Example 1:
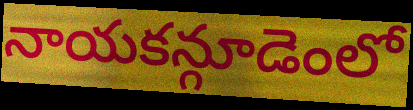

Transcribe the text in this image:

నాయకన్గూడెంలో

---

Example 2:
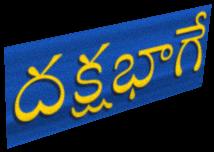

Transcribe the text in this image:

దక్షభాగే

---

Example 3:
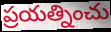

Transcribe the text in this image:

ప్రయత్నించు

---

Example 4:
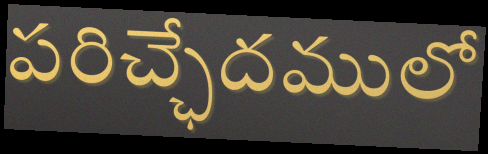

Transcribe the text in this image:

పరిచ్ఛేదములో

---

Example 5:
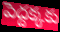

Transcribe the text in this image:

పెద్దక్కకు